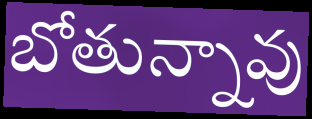
బోతున్నావు